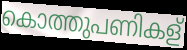
കൊത്തുപണികള്